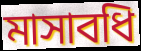
মাসাবধি